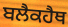
ਬਲੈਕਹੈਥ